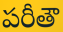
పరీతౌ